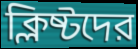
ক্লিষ্টদের